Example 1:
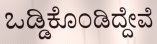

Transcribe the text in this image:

ಒಡ್ಡಿಕೊಂಡಿದ್ದೇವೆ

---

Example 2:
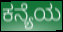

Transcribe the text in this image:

ಕನ್ಯೆಯ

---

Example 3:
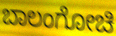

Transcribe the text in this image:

ಬಾಲಂಗೋಚಿ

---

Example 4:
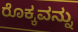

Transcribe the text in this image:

ರೊಕ್ಕವನ್ನು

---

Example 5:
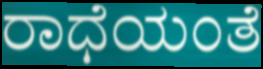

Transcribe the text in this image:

ರಾಧೆಯಂತೆ